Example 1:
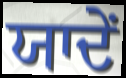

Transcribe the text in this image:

ਯਾਦੇਂ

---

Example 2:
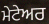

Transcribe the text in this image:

ਮੇਟੇਅਰ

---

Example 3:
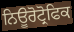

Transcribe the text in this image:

ਨਿਊਰੋਟ੍ਰੋਫਿਕ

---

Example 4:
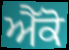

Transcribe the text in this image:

ਐੱਕੋ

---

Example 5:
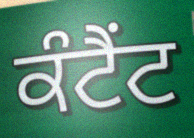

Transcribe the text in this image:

ਕੰਟੈਂਟ